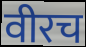
वीरच